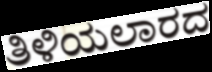
ತಿಳಿಯಲಾರದ